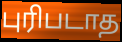
புரிபடாத